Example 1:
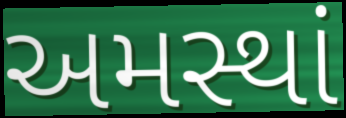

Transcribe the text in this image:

અમસ્થાં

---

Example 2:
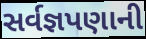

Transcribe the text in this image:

સર્વજ્ઞપણાની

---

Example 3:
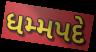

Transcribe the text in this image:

ધમ્મપદે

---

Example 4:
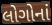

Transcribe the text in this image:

લોગોનાં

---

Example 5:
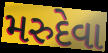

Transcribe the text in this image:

મરુદેવા